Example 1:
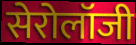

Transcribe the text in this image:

सेरोलॉजी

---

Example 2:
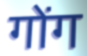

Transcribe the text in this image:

गोंग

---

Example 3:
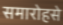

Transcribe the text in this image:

समारोहसे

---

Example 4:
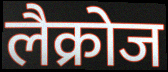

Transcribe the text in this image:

लैक्रोज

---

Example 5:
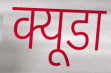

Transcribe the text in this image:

क्यूडा